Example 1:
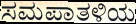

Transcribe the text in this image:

ಸಮಪಾತಳಿಯ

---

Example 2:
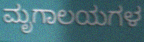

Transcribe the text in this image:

ಮೃಗಾಲಯಗಳ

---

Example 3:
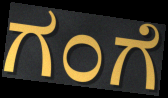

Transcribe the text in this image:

ಗಂಗೆ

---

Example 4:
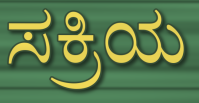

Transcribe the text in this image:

ಸಕ್ರಿಯ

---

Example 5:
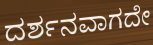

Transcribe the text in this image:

ದರ್ಶನವಾಗದೇ